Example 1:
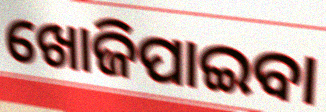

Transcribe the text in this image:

ଖୋଜିପାଇବା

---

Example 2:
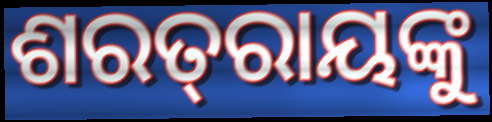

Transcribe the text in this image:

ଶରତ୍‌ରାୟଙ୍କୁ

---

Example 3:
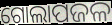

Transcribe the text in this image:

ଗୋଲାପଜଳ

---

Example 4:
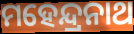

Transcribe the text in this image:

ମହେନ୍ଦ୍ରନାଥ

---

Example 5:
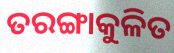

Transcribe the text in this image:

ତରଙ୍ଗାକୁଳିତ